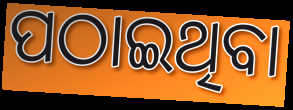
ପଠାଇଥିବା